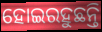
ହୋଇରହୁଛନ୍ତି